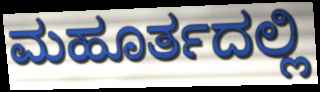
ಮಹೂರ್ತದಲ್ಲಿ